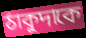
ঠাকুদাকে